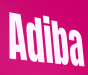
Adiba